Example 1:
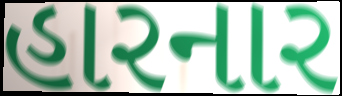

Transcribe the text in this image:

હારનાર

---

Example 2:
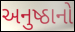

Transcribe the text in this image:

અનુષ્ઠાનો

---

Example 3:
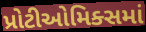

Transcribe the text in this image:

પ્રોટીઓમિક્સમાં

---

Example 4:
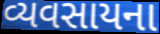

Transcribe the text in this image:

વ્યવસાયના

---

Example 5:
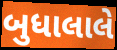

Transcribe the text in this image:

બુધાલાલે